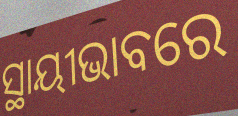
ସ୍ଥାୟୀଭାବରେ